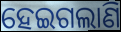
ହେଇଗଲାଣି